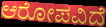
ಆರೋಪವಿದೆ